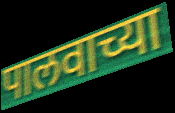
पालवाच्या